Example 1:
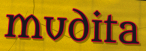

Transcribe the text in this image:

mudita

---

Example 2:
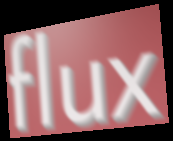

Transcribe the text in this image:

flux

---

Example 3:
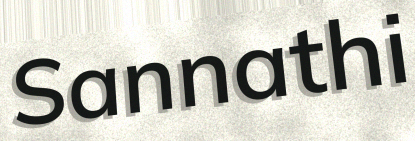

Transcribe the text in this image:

Sannathi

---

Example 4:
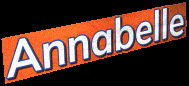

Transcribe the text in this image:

Annabelle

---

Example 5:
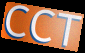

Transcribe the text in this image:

CCT